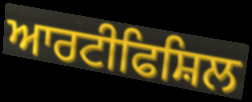
ਆਰਟੀਫਿਸ਼ਿਲ